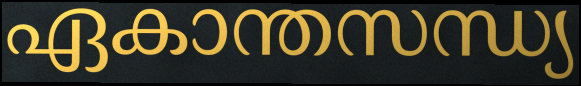
ഏകാന്തസന്ധ്യ